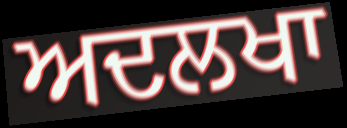
ਅਦਲਖਾ